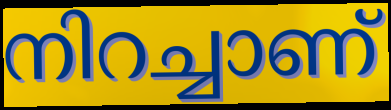
നിറച്ചാണ്